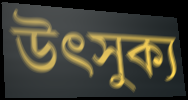
উৎসুক্য